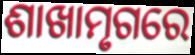
ଶାଖାମୃଗରେ